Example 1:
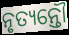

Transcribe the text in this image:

ନୃତ୍ୟନ୍ତୌ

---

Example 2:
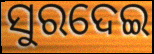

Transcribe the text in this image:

ସୁରଦେଇ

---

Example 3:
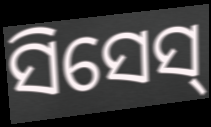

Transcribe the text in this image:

ସିସେସ୍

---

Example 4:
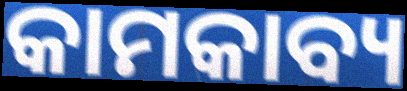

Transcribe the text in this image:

କାମକାବ୍ୟ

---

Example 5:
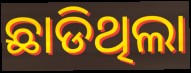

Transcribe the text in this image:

ଛାଡିଥିଲା